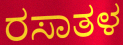
ರಸಾತಳ